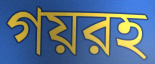
গয়রহ